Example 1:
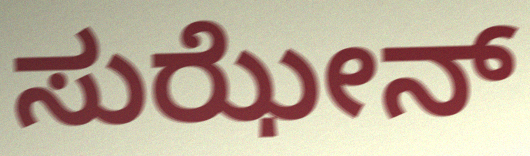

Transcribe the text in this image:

ಸುಝೇನ್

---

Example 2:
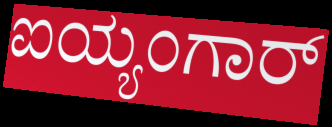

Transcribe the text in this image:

ಐಯ್ಯಂಗಾರ್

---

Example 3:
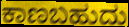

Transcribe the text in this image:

ಕಾಣಬಹುದು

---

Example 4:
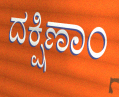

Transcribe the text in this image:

ದಕ್ಷಿಣಾಂ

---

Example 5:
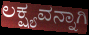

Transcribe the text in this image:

ಲಕ್ಷ್ಯವನ್ನಾಗಿ